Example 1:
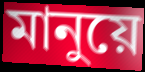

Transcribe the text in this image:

মানুয়ে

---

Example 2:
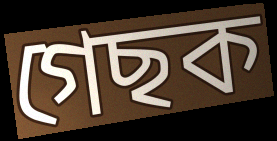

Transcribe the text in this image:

গেছক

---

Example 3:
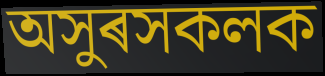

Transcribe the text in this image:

অসুৰসকলক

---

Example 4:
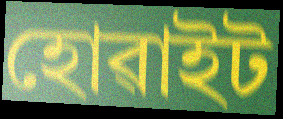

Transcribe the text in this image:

হোৱাইট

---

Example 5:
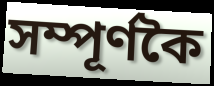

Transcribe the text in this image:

সম্পূৰ্ণকৈ